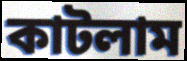
কাটলাম